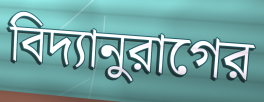
বিদ্যানুরাগের